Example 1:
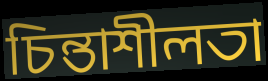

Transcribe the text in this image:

চিন্তাশীলতা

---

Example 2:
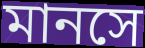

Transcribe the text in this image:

মানসে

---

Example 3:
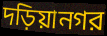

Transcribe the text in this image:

দড়িয়ানগর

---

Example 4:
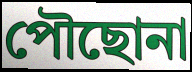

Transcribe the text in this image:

পৌছোনা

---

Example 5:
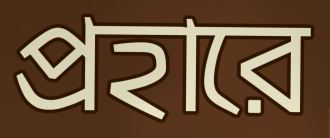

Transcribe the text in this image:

প্রহারে